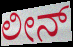
ಲೀನ್